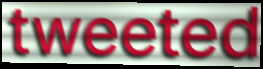
tweeted